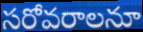
సరోవరాలనూ